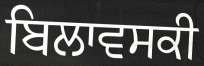
ਬਿਲਾਵਸਕੀ